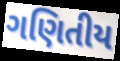
ગણિતીય